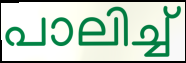
പാലിച്ച്